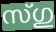
സ്ഗു